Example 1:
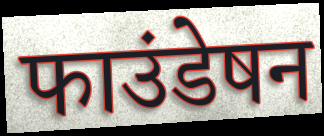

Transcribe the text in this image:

फाउंडेषन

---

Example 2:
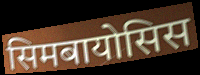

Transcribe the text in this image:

सिमबायोसिस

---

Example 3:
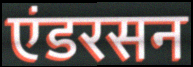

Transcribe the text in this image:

एंडरसन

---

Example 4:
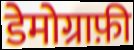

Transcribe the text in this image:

डेमोग्राफ़ी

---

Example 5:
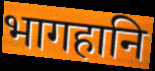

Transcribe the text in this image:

भागहानि